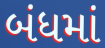
બંધમાં